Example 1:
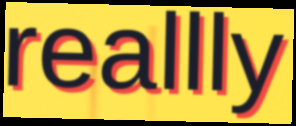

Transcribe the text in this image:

reallly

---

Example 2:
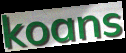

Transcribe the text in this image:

koans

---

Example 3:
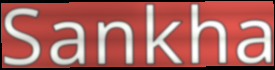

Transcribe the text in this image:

Sankha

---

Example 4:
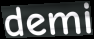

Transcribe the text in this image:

demi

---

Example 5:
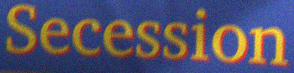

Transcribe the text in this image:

Secession